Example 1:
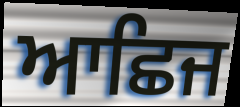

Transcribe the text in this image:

ਆਛਿਜ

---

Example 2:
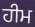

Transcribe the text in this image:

ਹੀਮ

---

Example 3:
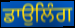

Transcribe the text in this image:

ਡਾਉਲਿੰਗ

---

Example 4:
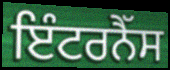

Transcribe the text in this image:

ਇੰਟਰਨੈੱਸ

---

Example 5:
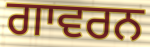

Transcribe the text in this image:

ਗਾਵਰਨ